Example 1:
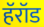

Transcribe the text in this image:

हॅरॉड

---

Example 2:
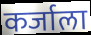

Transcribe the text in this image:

कर्जाला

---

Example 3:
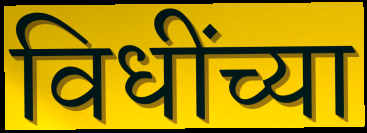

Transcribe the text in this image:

विधींच्या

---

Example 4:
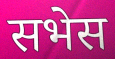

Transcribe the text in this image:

सभेस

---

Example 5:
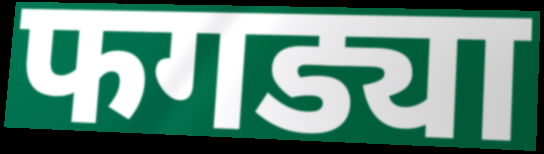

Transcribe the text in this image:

फगड्या